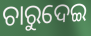
ଚାରୁଦେଇ